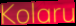
Kolaru